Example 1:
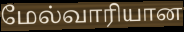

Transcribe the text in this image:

மேல்வாரியான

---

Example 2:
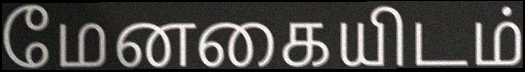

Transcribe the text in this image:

மேனகையிடம்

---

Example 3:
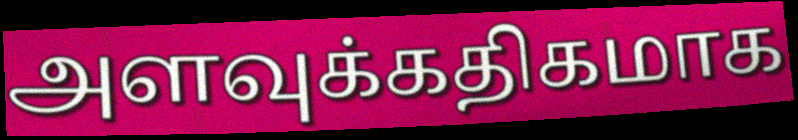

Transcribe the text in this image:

அளவுக்கதிகமாக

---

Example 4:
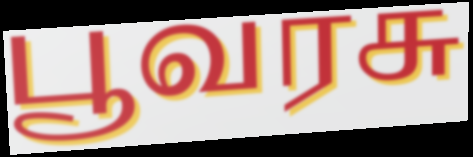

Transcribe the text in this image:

பூவரசு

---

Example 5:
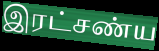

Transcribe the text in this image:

இரட்சண்ய